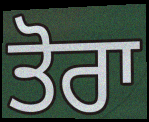
ਤੋਰਾ